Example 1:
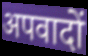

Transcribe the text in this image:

अपवादों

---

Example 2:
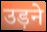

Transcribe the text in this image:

उड़ने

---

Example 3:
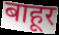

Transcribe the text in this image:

बाहूर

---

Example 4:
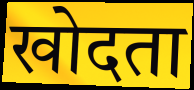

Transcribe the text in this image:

खोदता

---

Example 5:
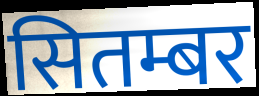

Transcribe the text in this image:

सितम्‍बर